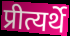
प्रीत्यर्थे